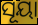
ସୂୟା